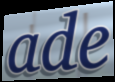
ade